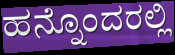
ಹನ್ನೊಂದರಲ್ಲಿ